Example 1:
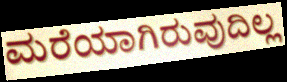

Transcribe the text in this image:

ಮರೆಯಾಗಿರುವುದಿಲ್ಲ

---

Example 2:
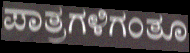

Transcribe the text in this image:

ಪಾತ್ರಗಳಿಗಂತೂ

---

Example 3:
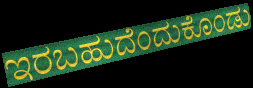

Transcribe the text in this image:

ಇರಬಹುದೆಂದುಕೊಂಡು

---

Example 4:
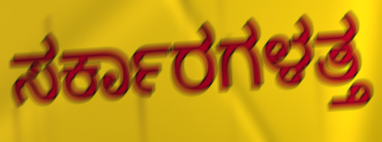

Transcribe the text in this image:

ಸರ್ಕಾರಗಳತ್ತ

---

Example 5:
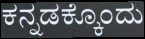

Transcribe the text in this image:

ಕನ್ನಡಕ್ಕೊಂದು